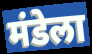
मंडेला